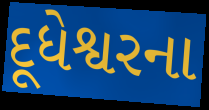
દૂધેશ્વરના